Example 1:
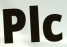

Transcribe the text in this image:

Plc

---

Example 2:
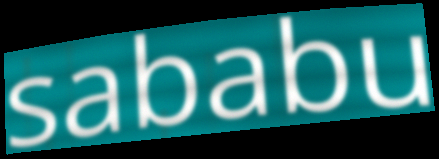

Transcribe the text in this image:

sababu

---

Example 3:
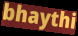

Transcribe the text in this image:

bhaythi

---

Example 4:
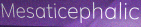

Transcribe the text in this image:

Mesaticephalic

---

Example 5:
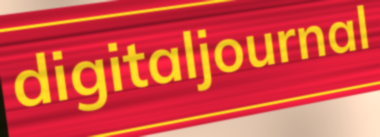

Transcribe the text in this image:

digitaljournal